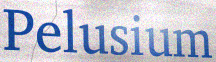
Pelusium